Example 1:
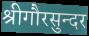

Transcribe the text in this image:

श्रीगौरसुन्दर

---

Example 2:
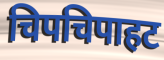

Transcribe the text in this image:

चिपचिपाहट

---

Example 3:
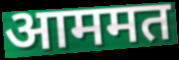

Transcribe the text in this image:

आममत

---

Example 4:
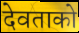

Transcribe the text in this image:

देवताको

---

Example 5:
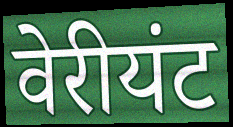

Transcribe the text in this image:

वेरीयंट